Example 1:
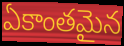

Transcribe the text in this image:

ఏకాంతమైన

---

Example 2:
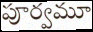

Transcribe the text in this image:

పూర్వమూ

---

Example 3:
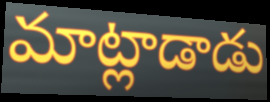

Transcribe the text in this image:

మాట్లాడాడు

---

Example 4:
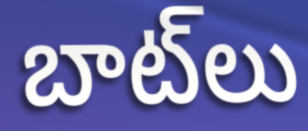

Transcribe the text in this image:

బాట్‌లు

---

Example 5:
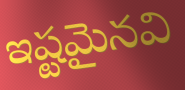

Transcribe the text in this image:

ఇష్టమైనవి